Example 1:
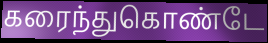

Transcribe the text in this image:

கரைந்துகொண்டே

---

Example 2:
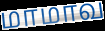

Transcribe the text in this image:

மாமாவ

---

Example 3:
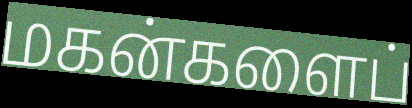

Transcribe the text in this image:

மகன்களைப்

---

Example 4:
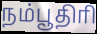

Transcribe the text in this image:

நம்பூதிரி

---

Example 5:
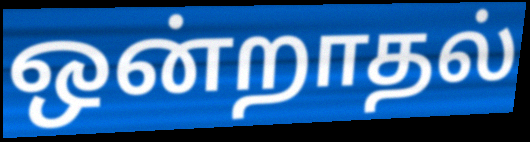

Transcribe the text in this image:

ஒன்றாதல்